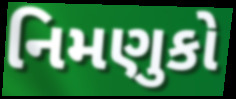
નિમણુકો